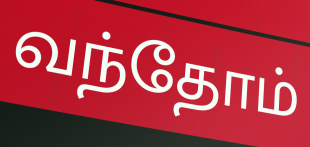
வந்தோம்